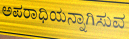
ಅಪರಾಧಿಯನ್ನಾಗಿಸುವ